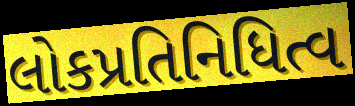
લોકપ્રતિનિધિત્વ